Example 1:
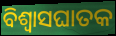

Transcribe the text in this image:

ବିଶ୍ୱାସଘାତକ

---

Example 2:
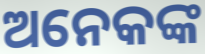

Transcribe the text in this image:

ଅନେକଙ୍କ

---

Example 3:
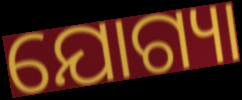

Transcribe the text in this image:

ଯୋଗ୍ୟା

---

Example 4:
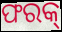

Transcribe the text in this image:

ଫରକ୍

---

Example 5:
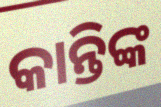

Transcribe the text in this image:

କାନ୍ତିଙ୍କ